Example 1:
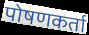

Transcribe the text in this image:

पोषणकर्ता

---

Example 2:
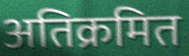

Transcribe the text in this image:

अतिक्रमित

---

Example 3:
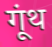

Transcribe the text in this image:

गूंथ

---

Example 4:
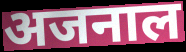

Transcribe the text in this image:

अजनाल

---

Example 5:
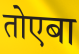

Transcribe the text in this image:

तोएबा